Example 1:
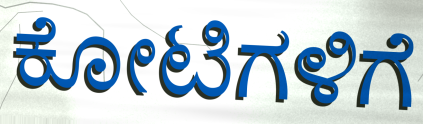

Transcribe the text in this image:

ಕೋಟಿಗಳಿಗೆ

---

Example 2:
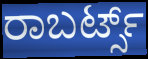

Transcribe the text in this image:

ರಾಬರ್ಟ್ಸ್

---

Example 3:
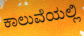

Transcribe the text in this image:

ಕಾಲುವೆಯಲ್ಲಿ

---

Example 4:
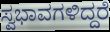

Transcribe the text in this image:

ಸ್ವಭಾವಗಳಿದ್ದರೆ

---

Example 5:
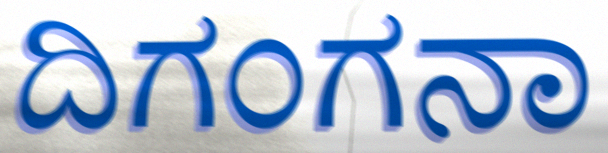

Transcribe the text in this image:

ದಿಗಂಗನಾ